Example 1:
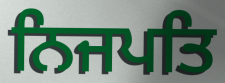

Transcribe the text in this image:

ਨਿਜਪਤਿ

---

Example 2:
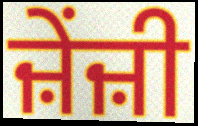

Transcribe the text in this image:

ਜ਼ੇਂਜ਼ੀ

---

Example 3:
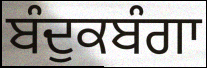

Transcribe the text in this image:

ਬੰਦੁਕਬੰਗਾ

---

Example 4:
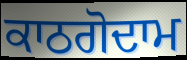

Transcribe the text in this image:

ਕਾਠਗੋਦਾਮ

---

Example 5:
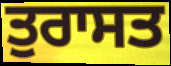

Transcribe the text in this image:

ਤੁਰਾਸਤ